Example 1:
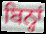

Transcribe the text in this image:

ਬਿਨ੍ਹਾਂ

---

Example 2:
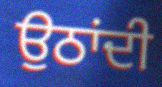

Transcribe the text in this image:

ਉਠਾਂਦੀ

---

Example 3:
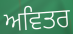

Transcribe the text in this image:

ਅਵਿਤਰ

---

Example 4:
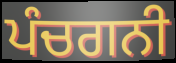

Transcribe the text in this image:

ਪੰਚਗਨੀ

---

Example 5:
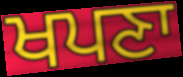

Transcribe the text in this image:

ਖਪਣਾ